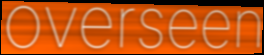
overseen